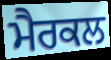
ਮੈਰਕਲ